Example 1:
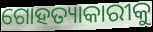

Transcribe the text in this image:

ଗୋହତ୍ୟାକାରୀକୁ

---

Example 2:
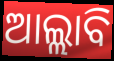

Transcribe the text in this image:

ଆଲ୍ଲାବି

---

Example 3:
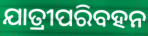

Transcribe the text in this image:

ଯାତ୍ରୀପରିବହନ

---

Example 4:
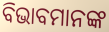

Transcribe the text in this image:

ବିଭାବମାନଙ୍କ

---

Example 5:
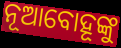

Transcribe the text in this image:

ନୂଆବୋହୂଙ୍କୁ